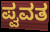
ಪ್ವವತ